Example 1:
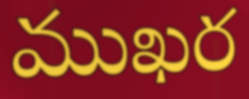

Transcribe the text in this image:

ముఖర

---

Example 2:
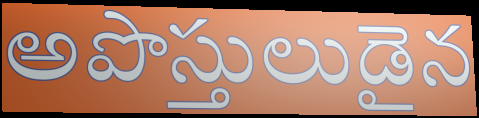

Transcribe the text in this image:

అపొస్తులుడైన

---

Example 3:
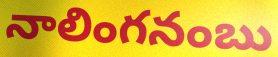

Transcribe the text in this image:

నాలింగనంబు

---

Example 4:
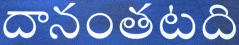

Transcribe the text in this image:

దానంతటది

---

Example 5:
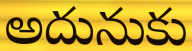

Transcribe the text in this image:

అదునుకు